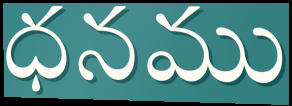
ధనము